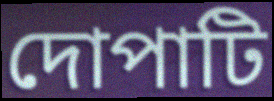
দোপাটি